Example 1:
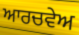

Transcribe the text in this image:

ਆਰਚਵੇਅ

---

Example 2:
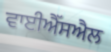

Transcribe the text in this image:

ਵਾਈਐੱਸਐਲ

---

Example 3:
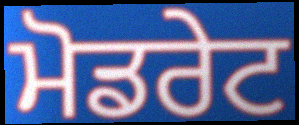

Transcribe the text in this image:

ਮੋਡਰੇਟ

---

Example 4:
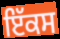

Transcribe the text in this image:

ਇੱਕਸ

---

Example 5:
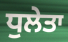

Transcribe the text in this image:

ਧੁਲੇਤਾ